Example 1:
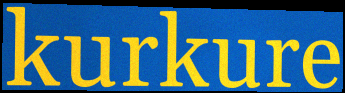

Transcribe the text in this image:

kurkure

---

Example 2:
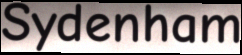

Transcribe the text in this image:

Sydenham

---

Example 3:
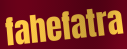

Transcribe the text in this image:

fahefatra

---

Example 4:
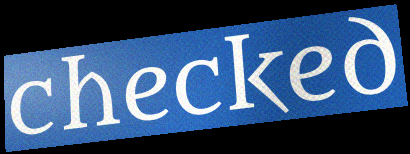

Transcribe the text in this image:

checked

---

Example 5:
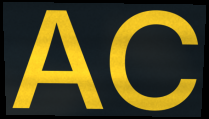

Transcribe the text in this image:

AC